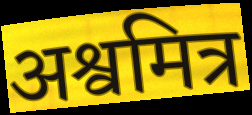
अश्वमित्र